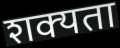
शक्‍यता